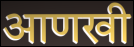
आणखी